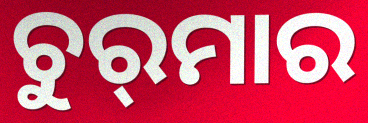
ଚୁର୍‍ମାର